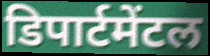
डिपार्टमेंटल